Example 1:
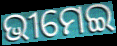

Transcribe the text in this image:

ଭୀମେଇ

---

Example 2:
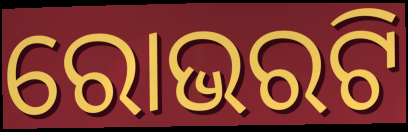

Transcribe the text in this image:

ରୋଭରଟି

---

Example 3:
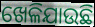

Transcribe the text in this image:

ଖେଳିଯାଉଛି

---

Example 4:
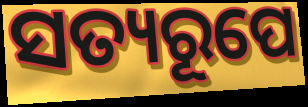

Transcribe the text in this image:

ସତ୍ୟରୂପେ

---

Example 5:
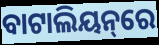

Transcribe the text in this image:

ବାଟାଲିୟନ୍‌ରେ